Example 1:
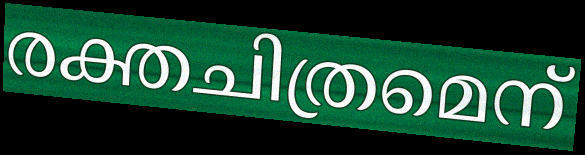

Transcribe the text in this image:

രക്തചിത്രമെന്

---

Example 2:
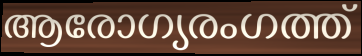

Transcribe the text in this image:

ആരോഗ്യരംഗത്ത്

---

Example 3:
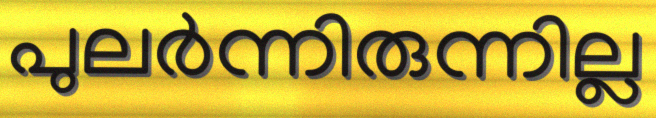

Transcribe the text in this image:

പുലർന്നിരുന്നില്ല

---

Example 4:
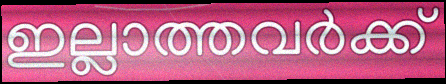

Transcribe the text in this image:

ഇല്ലാത്തവർക്ക്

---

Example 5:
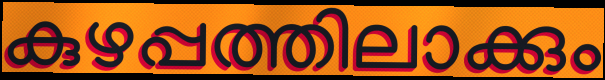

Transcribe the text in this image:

കുഴപ്പത്തിലാക്കും